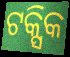
ଟକ୍ସିକ